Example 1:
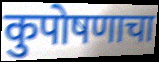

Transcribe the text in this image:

कुपोषणाचा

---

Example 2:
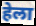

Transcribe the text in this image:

हेला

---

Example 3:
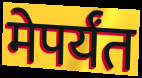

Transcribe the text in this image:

मेपर्यंत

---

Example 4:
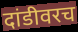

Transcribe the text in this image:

दांडीवरच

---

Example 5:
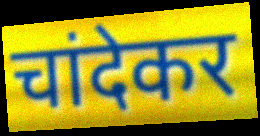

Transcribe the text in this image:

चांदेकर